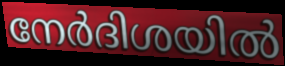
നേർദിശയിൽ